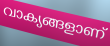
വാക്യങ്ങളാണ്